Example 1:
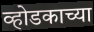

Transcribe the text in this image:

व्होडकाच्या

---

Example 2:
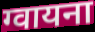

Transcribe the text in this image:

ग्वायना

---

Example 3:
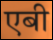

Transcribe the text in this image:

एबी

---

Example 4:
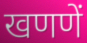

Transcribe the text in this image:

खणणें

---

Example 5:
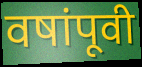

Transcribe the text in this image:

वषांपूवी